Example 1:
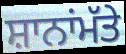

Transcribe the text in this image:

ਸ਼ਾਨਾਂਮੱਤੇ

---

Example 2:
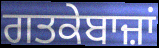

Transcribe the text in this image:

ਗਤਕੇਬਾਜ਼ਾਂ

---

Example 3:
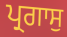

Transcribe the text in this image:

ਪ੍ਰਗਾਸੁ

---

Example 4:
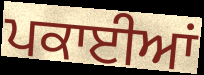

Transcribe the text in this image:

ਪਕਾਈਆਂ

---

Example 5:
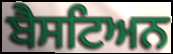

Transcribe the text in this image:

ਬੈਸਟਿਅਨ